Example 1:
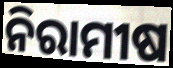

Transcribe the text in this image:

ନିରାମୀଷ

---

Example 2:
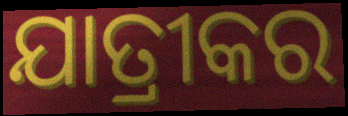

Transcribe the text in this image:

ଯାତ୍ରୀକର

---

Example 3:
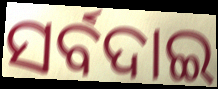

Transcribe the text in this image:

ସର୍ବଦାଇ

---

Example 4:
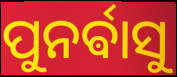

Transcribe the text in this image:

ପୁନର୍ଵାସୁ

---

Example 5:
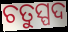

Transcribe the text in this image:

ଚତୁସ୍ପଦ